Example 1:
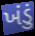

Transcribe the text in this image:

ખંડું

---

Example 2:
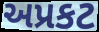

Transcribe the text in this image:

અપ્રકટ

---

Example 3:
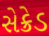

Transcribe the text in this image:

સેક્રેડ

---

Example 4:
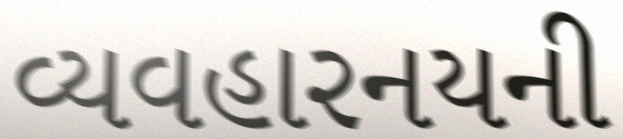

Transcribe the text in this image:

વ્યવહારનયની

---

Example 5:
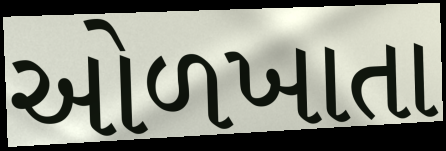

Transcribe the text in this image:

ઓળખાતા